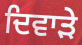
ਦਿਵਾੜੇ